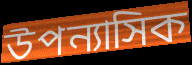
উপন্যাসিক